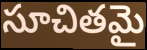
సూచితమై